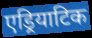
एड्रियाटिक